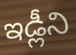
ఇడ్లీని